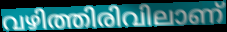
വഴിത്തിരിവിലാണ്